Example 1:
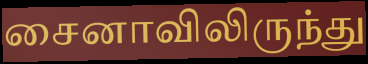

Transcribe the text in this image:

சைனாவிலிருந்து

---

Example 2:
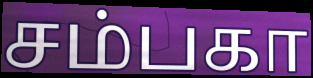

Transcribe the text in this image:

சம்பகா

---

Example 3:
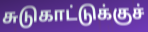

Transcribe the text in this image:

சுடுகாட்டுக்குச்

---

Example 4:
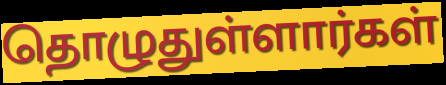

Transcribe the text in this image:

தொழுதுள்ளார்கள்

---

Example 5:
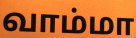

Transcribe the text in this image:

வாம்மா